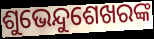
ଶୁଭେନ୍ଦୁଶେଖରଙ୍କ